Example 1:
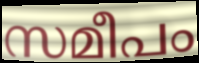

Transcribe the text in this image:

സമീപം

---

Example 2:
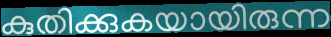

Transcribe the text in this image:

കുതിക്കുകയായിരുന്ന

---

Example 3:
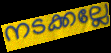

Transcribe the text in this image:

നടക്കല്ലേ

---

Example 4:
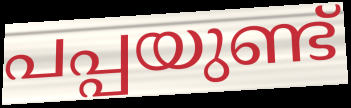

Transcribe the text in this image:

പപ്പയുണ്ട്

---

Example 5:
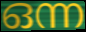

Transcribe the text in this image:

ഒന്ന